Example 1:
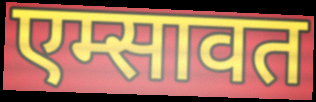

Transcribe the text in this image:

एम्सावत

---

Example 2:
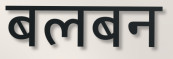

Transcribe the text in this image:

बलबन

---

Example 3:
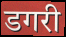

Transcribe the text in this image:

डगरी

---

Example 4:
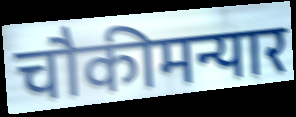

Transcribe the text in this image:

चौकीमन्यार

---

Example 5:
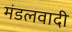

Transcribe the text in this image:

मंडलवादी